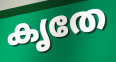
കൃതേ